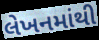
લેખનમાંથી